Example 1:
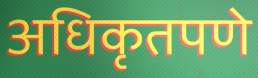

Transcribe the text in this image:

अधिकृतपणे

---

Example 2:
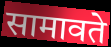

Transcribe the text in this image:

सामावते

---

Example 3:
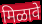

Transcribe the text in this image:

मिळावे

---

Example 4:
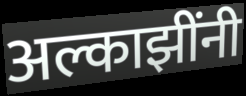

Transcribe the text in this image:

अल्काझींनी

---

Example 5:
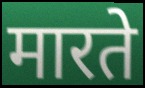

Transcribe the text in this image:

मारते